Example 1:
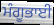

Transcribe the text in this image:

ਮੰਗੂਭਾਈ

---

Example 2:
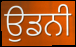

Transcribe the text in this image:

ਉਡਨੀ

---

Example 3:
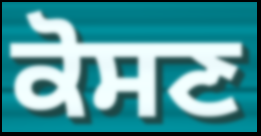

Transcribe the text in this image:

ਕੋਸਣ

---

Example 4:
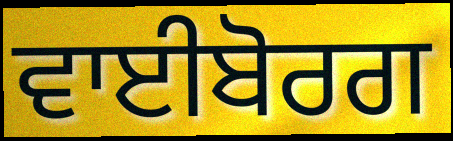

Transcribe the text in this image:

ਵਾਈਬੋਰਗ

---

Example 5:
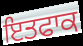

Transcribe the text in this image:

ਇਤਫਾਕ